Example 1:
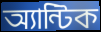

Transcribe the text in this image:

অ্যান্টিক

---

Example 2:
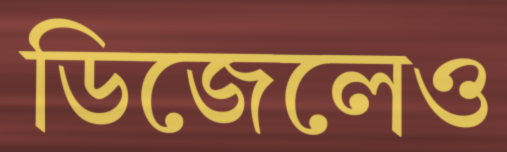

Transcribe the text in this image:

ডিজেলেও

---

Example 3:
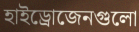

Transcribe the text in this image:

হাইড্রোজেনগুলো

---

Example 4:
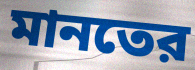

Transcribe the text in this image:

মানতের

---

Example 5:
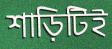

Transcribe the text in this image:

শাড়িটিই